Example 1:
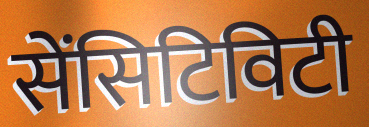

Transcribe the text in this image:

सेंसिटिविटी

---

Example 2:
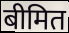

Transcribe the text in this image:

बीमित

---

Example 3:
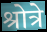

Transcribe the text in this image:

श्रोत्रे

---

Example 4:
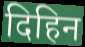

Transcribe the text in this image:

दिहिन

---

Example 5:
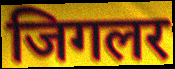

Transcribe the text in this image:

जिगलर